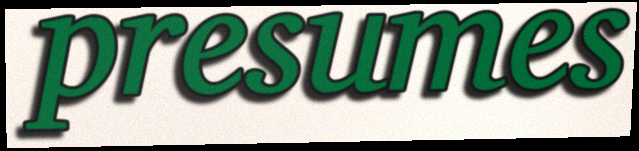
presumes